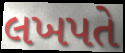
લખપતે